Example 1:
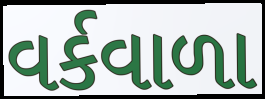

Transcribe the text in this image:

વર્કવાળા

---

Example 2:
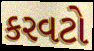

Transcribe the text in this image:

કરવટો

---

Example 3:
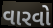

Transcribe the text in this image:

વારવો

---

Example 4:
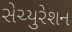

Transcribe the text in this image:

સેચ્યુરેશન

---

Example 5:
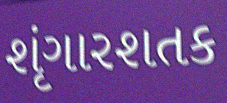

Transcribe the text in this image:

શૃંગારશતક